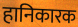
हानिकारक